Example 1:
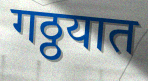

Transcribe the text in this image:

गठ्ठयात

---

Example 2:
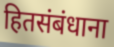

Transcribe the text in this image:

हितसंबंधाना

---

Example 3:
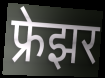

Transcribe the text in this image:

फ्रेझर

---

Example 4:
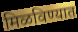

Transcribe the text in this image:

मिळविण्यात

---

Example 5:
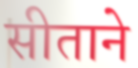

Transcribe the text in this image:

सीताने